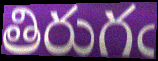
తిరుగఁ